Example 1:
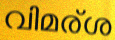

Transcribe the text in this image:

വിമര്ശ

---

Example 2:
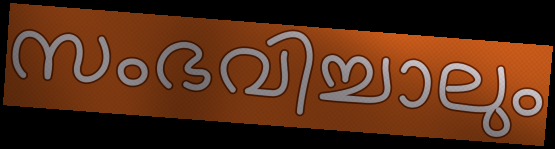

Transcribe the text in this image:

സംഭവിച്ചാലും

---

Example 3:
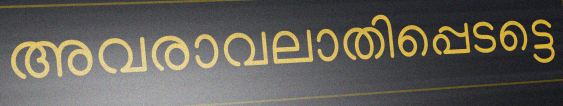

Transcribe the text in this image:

അവരാവലാതിപ്പെടട്ടെ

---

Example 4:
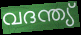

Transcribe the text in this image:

വദന്ത്യ്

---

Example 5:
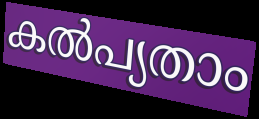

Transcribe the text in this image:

കൽപ്യതാം